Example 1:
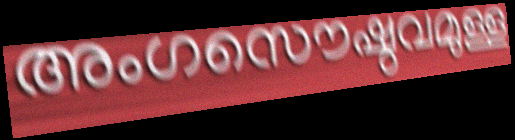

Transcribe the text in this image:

അംഗസൌഷ്ഠവമുള്ള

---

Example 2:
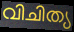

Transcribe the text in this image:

വിചിത്യ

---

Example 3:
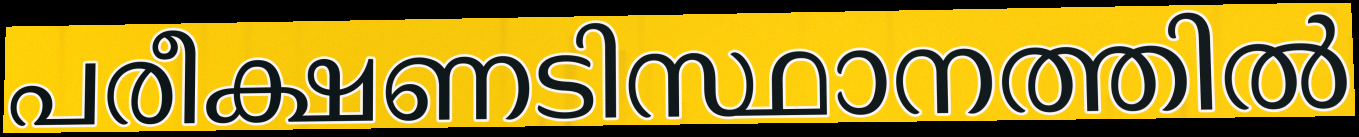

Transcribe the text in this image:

പരീക്ഷണടിസ്ഥാനത്തിൽ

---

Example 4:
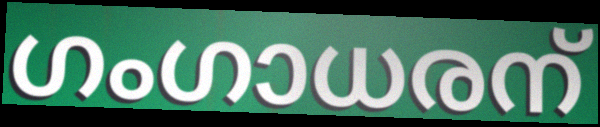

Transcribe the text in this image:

ഗംഗാധരന്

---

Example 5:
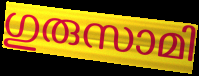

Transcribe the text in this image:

ഗുരുസാമി